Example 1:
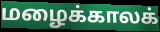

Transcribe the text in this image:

மழைக்காலக்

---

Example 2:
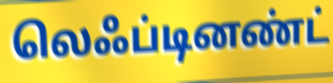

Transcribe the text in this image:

லெஃப்டினண்ட்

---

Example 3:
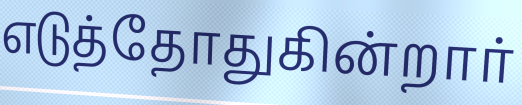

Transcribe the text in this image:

எடுத்தோதுகின்றார்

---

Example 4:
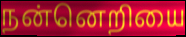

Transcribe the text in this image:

நன்னெறியை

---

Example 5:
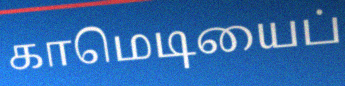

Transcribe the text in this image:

காமெடியைப்